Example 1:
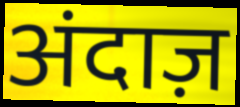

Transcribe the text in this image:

अंदाज़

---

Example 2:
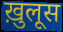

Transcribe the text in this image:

ख़ुलूस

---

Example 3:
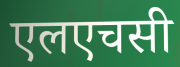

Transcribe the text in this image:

एलएचसी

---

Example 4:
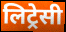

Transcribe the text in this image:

लिट्रेसी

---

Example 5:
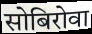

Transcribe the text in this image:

सोबिरोवा